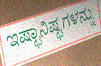
ಇಷ್ಟಾನಿಷ್ಟಗಳನ್ನು